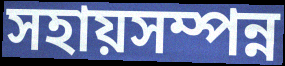
সহায়সম্পন্ন